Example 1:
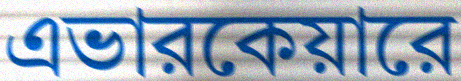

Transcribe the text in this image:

এভারকেয়ারে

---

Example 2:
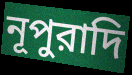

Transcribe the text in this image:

নূপুরাদি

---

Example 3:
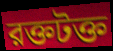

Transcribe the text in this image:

রক্তটক্ত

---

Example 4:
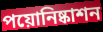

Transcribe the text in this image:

পয়োনিষ্কাশন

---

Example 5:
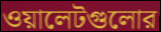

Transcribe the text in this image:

ওয়ালেটগুলোর